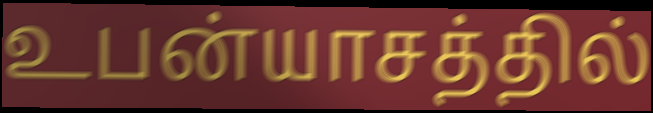
உபன்யாசத்தில்